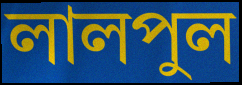
লালপুল